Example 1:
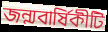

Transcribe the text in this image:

জন্মবার্ষিকীটি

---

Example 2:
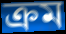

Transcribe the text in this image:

ক্রম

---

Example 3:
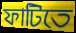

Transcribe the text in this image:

ফাটিতে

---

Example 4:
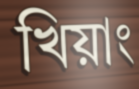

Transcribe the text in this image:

খিয়াং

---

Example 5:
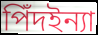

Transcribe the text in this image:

পিঁদইন্যা